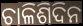
ଚାଳିଶିଦିନ